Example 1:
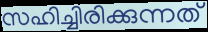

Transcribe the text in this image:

സഹിച്ചിരിക്കുന്നത്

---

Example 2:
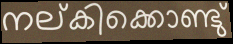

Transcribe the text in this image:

നല്കിക്കൊണ്ടു്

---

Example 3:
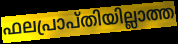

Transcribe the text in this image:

ഫലപ്രാപ്തിയില്ലാത്ത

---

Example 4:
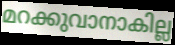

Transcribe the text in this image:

മറക്കുവാനാകില്ല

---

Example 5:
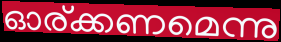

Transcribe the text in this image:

ഓര്ക്കണമെന്നു